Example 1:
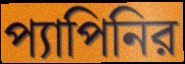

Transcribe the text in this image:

প্যাপিনির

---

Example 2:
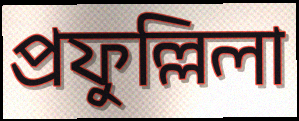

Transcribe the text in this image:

প্রফুল্লিলা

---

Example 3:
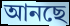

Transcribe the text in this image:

আনছে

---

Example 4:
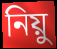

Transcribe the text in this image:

নিয়ু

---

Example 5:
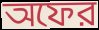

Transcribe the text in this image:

অফের